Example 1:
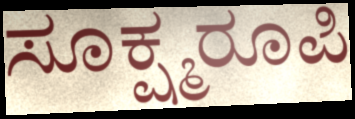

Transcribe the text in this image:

ಸೂಕ್ಷ್ಮರೂಪಿ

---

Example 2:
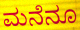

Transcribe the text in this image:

ಮನೆನೂ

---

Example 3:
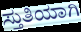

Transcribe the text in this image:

ಸ್ತುತಿಯಾಗಿ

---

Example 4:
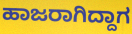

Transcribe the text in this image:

ಹಾಜರಾಗಿದ್ದಾಗ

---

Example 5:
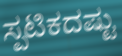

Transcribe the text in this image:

ಸ್ಪಟಿಕದಷ್ಟು